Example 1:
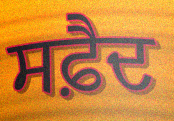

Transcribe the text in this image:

ਸਫ਼ੈਦ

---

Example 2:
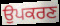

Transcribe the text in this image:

ਉਪਕਰਣ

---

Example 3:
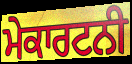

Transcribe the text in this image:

ਮੇਕਾਰਟਨੀ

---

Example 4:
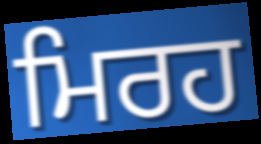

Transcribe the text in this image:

ਮਿਰਹ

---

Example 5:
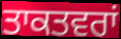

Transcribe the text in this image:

ਤਾਕਤਵਰਾਂ